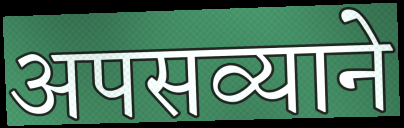
अपसव्याने